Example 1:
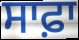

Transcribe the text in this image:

ਸਾਫ਼ਾ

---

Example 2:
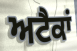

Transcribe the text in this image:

ਅਟੈਕਾਂ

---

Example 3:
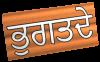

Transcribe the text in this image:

ਭੁਗਤਦੇ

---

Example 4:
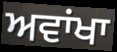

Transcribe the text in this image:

ਅਵਾਂਖਾ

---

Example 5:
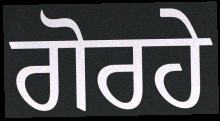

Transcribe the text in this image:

ਗੋਰਹੇ